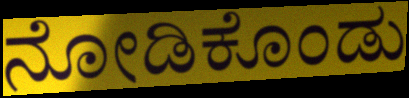
ನೋಡಿಕೊಂಡು